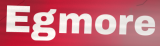
Egmore